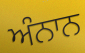
ਅੰਨਾਨ